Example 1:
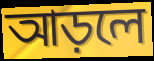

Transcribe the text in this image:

আড়লে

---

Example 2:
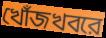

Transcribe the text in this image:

খোঁজখবরে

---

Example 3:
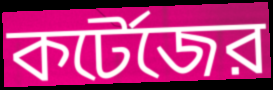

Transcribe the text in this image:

কর্টেজের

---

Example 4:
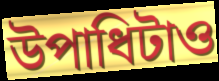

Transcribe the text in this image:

উপাধিটাও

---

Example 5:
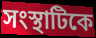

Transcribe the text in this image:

সংস্থাটিকে